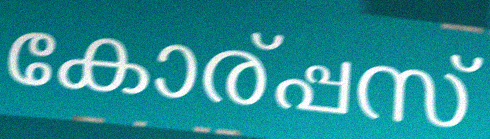
കോര്പ്പസ്